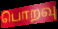
பொறவு